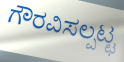
ಗೌರವಿಸಲ್ಪಟ್ಟ